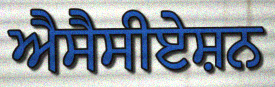
ਐਸੈਸੀਏਸ਼ਨ